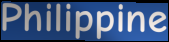
Philippine